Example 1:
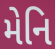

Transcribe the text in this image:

મેનિ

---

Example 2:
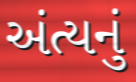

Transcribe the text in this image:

અંત્યનું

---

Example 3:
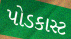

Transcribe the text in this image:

પોડકાસ્ટ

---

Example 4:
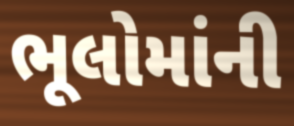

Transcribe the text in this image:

ભૂલોમાંની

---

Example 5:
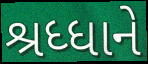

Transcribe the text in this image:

શ્રધ્ધાને